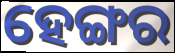
ହେଙ୍ଗର